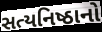
સત્યનિષ્ઠાનો